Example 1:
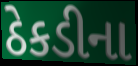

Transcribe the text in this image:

ઠેકડીના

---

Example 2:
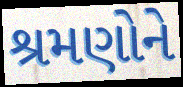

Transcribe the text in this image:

શ્રમણોને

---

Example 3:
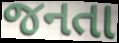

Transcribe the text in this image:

જનતા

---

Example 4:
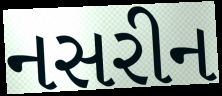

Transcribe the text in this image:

નસરીન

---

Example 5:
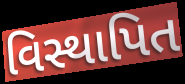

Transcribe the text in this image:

વિસ્થાપિત